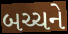
બચ્ચને